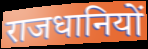
राजधानियों